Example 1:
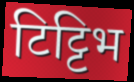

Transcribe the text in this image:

टिट्टिभ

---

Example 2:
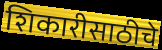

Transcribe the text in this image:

शिकारीसाठीचे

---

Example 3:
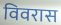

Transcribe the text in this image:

विवरास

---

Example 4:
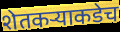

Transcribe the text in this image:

शेतकऱ्याकडेच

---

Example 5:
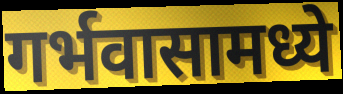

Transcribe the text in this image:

गर्भवासामध्ये